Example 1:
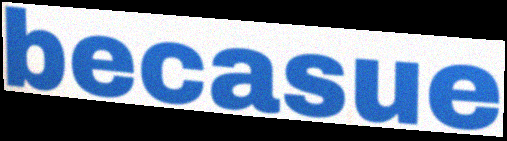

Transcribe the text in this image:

becasue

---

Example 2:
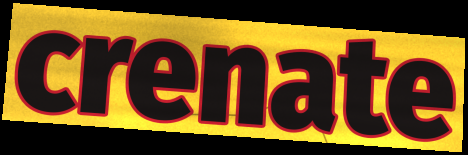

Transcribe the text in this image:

crenate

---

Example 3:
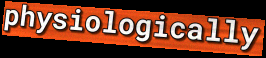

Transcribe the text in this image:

physiologically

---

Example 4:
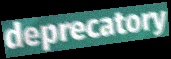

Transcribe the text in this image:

deprecatory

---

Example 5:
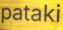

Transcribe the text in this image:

pataki